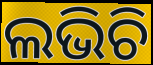
ଲଭିଚି